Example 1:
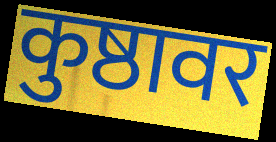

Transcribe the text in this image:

कुष्ठावर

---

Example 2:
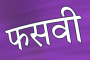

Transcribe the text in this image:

फसवी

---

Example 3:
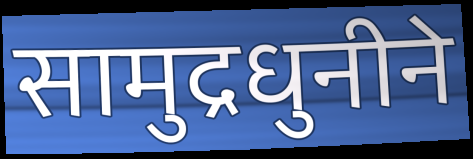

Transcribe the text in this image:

सामुद्रधुनीने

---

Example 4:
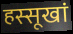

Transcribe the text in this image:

हस्सूखां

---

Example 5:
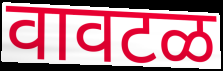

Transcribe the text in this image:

वावटळ